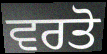
ਵਰਤੋ